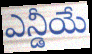
ఎన్డీయే